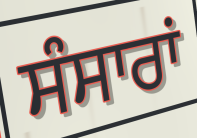
ਸੰਸਾਰਾਂ